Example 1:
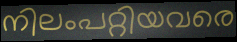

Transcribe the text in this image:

നിലംപറ്റിയവരെ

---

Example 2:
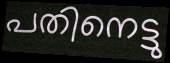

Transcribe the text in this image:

പതിനെട്ടു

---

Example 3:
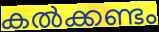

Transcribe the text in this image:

കൽക്കണ്ടം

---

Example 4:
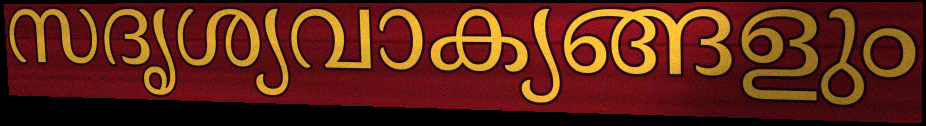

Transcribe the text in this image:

സദൃശ്യവാക്യങ്ങളും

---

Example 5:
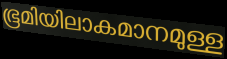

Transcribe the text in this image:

ഭൂമിയിലാകമാനമുള്ള